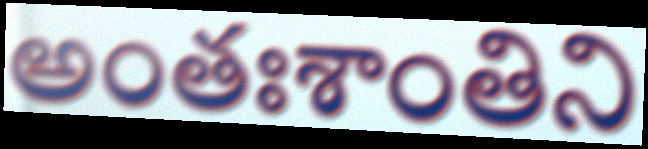
అంతఃశాంతిని